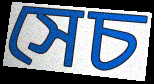
সেচ